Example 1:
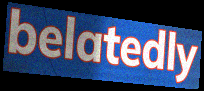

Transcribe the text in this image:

belatedly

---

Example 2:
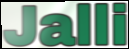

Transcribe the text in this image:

Jalli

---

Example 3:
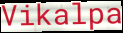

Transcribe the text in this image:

Vikalpa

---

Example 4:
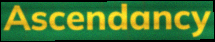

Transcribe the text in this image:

Ascendancy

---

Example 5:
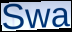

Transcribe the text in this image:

Swa